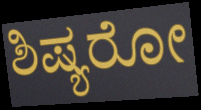
ಶಿಷ್ಯರೋ